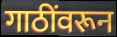
गाठींवरून